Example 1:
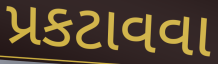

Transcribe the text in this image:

પ્રકટાવવા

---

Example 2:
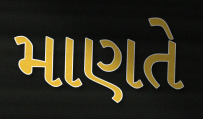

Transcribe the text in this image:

માણતે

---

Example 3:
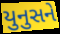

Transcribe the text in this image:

યુનુસને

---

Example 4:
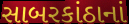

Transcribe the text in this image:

સાબરકાંઠાનાં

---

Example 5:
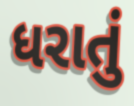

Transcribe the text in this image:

ધરાતું